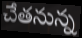
చేతనున్న